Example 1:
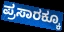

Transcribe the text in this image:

ಪ್ರಸಾರಕ್ಕೂ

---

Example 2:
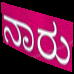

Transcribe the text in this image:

ನಾರು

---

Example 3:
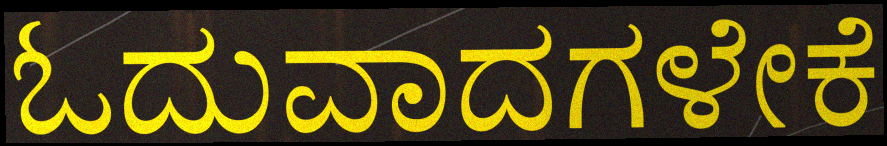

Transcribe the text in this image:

ಓದುವಾದಗಳೇಕೆ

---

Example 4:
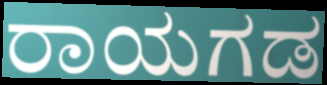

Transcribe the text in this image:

ರಾಯಗಡ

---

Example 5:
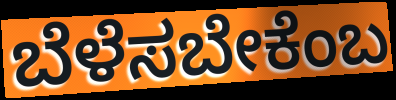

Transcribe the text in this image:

ಬೆಳೆಸಬೇಕೆಂಬ